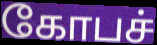
கோபச்